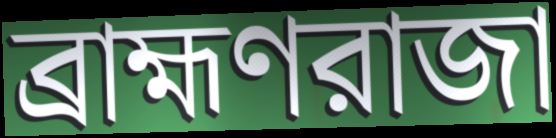
ব্রাহ্মণরাজা